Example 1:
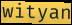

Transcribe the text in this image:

wityan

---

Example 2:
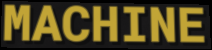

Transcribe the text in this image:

MACHINE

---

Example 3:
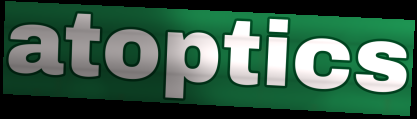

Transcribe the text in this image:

atoptics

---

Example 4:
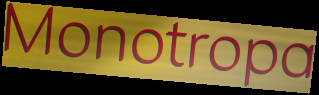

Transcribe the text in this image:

Monotropa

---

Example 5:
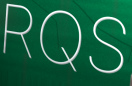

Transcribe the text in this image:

RQS